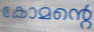
കോമന്റെ